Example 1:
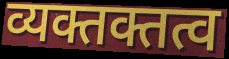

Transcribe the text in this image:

व्यक्तक्तत्व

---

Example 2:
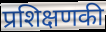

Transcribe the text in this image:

प्रशिक्षणकी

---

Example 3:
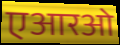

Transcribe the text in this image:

एआरओ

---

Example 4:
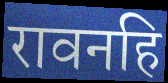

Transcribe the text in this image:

रावनहि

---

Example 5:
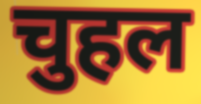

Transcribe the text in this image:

चुहल